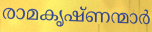
രാമകൃഷ്ണന്മാർ